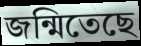
জন্মিতেছে